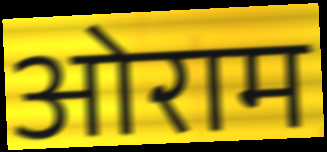
ओराम